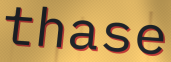
thase